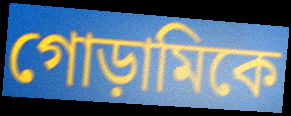
গোড়ামিকে